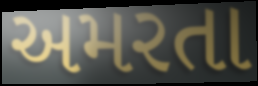
અમરતા